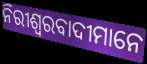
ନିରୀଶ୍ବରବାଦୀମାନେ